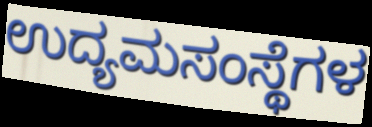
ಉದ್ಯಮಸಂಸ್ಥೆಗಳ